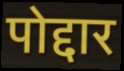
पोद्दार